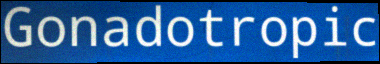
Gonadotropic